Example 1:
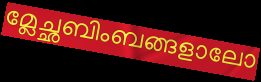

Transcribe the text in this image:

മ്ലേച്ഛബിംബങ്ങളാലോ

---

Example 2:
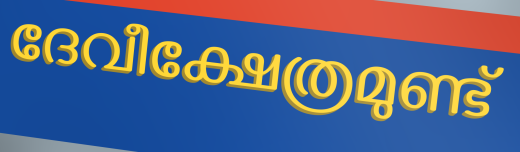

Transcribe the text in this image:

ദേവീക്ഷേത്രമുണ്ട്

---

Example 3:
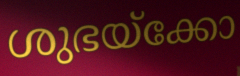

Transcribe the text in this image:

ശുഭയ്ക്കോ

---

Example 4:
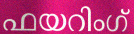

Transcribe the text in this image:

ഫയറിംഗ്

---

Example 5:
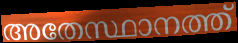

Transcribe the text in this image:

അതേസ്ഥാനത്ത്